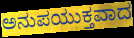
ಅನುಪಯುಕ್ತವಾದ